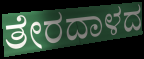
ತೇರದಾಳದ